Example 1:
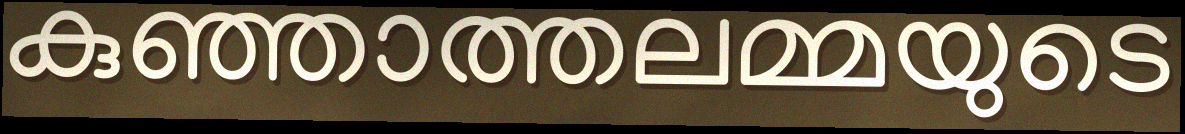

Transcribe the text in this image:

കുഞ്ഞാത്തലമ്മയുടെ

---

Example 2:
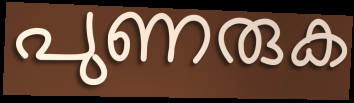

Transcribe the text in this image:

പുണരുക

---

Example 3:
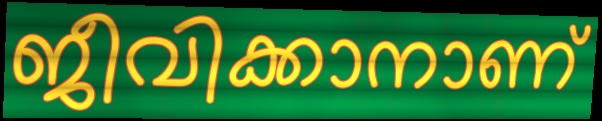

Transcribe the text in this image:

ജീവിക്കാനാണ്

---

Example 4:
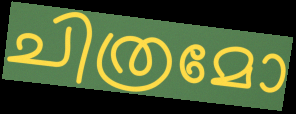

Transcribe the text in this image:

ചിത്രമോ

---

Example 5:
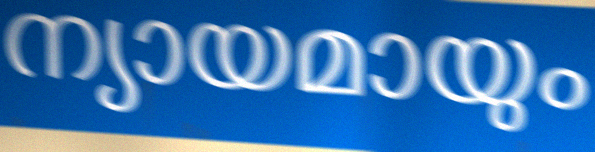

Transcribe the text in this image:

ന്യായമായും